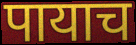
पायाच